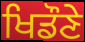
ਖਿਡੌਣੇ